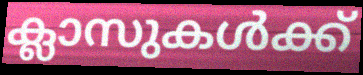
ക്ലാസുകൾക്ക്